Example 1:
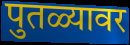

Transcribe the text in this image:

पुतळ्यावर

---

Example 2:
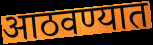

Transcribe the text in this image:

आठवण्यात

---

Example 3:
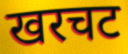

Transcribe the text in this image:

खरचट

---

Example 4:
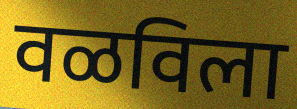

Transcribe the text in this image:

वळविला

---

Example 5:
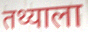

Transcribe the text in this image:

तथ्याला